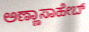
ಅಣ್ಣಾಸಾಹೇಬ್